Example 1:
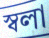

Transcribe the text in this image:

স্বলা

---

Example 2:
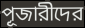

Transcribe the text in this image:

পূজারীদের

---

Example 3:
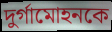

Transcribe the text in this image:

দুর্গামোহনকে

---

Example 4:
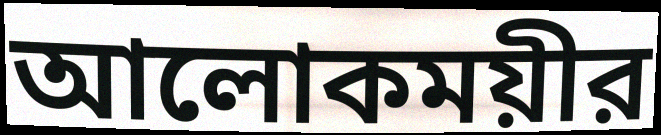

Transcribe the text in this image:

আলোকময়ীর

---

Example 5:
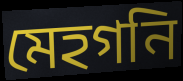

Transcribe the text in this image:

মেহগনি